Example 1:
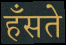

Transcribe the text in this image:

हँसते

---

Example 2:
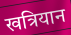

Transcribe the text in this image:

खत्रियान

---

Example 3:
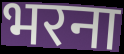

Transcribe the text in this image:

भरना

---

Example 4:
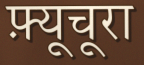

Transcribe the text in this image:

फ़्यूचूरा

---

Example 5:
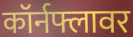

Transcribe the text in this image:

कॉर्नफ्लावर